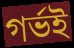
গর্ভই